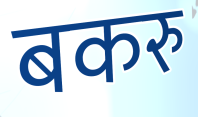
बकरु